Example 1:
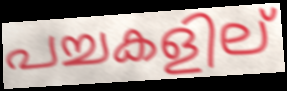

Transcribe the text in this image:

പച്ചകളില്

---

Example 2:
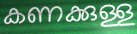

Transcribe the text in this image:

കണക്കുള്ള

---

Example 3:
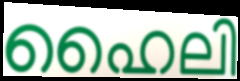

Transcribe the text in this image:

ഹൈലി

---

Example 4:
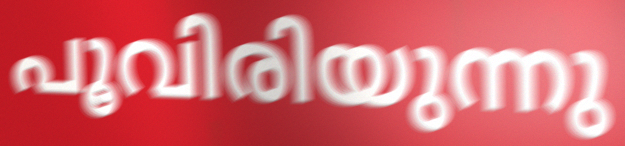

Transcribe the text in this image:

പൂവിരിയുന്നു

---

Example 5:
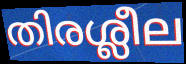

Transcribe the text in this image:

തിരശ്ലീല